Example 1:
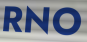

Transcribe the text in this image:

RNO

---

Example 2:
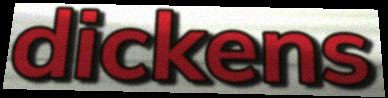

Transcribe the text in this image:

dickens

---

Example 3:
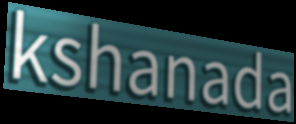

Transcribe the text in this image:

kshanada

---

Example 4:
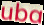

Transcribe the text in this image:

uba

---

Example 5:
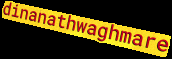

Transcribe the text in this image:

dinanathwaghmare